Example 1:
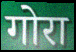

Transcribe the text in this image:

गोरा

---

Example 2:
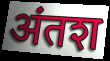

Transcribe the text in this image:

अंतश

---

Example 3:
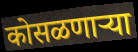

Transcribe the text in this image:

कोसळणार्‍या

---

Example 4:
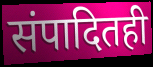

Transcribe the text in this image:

संपादितही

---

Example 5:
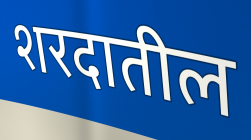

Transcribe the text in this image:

शरदातील